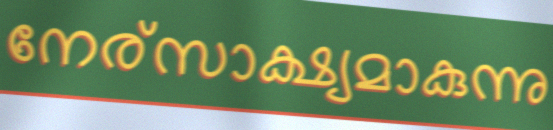
നേര്സാക്ഷ്യമാകുന്നു